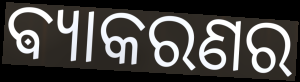
ଵ୍ୟାକରଣର